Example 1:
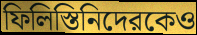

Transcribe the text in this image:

ফিলিস্তিনিদেরকেও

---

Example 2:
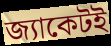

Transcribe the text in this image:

জ্যাকেটই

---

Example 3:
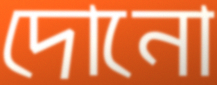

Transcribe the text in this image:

দোনো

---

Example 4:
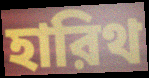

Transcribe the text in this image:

হারিথ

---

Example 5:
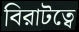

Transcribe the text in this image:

বিরাটত্বে